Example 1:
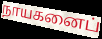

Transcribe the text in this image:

நாயகனைப்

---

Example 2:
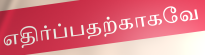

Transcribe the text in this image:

எதிர்ப்பதற்காகவே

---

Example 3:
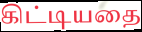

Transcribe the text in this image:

கிட்டியதை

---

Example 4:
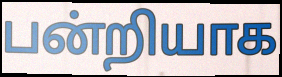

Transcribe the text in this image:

பன்றியாக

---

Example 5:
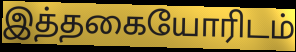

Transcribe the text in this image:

இத்தகையோரிடம்